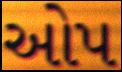
ઓપ